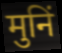
मुनिं